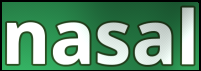
nasal